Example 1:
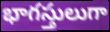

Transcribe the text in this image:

భాగస్తులుగా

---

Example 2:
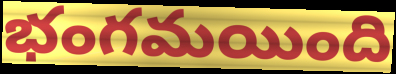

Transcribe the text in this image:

భంగమయింది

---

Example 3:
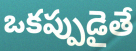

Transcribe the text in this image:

ఒకప్పుడైతే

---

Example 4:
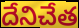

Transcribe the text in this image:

దేనిచేత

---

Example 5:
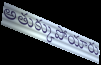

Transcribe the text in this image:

అతుక్కుపోయారు